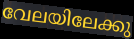
വേലയിലേക്കു